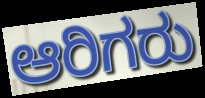
ಆರಿಗರು